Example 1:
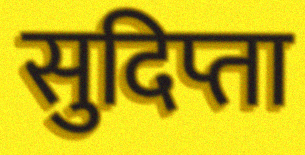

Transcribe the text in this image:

सुदिप्ता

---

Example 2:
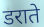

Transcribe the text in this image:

डराते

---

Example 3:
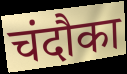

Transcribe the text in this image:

चंदौका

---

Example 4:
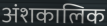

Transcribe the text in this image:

अंशकालिक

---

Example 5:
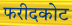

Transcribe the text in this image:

फरीदकोट